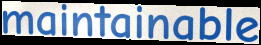
maintainable